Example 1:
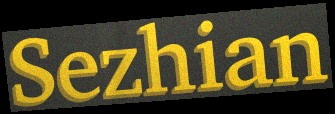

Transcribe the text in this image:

Sezhian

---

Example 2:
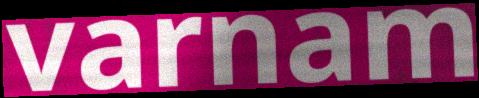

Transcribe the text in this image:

varnam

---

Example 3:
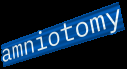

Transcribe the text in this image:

amniotomy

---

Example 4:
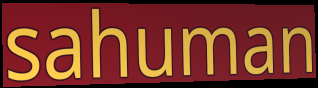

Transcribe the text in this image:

sahuman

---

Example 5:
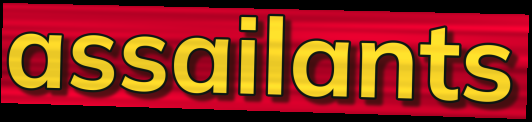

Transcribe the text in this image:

assailants